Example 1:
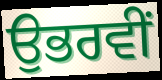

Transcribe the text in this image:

ਉਭਰਵੀਂ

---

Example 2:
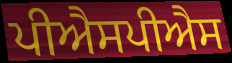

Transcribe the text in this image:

ਪੀਐਸਪੀਐਸ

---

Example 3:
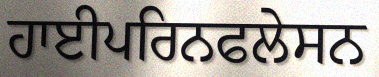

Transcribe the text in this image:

ਹਾਈਪਰਿਨਫਲੇਸਨ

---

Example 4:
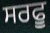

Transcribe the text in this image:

ਸਰਫੂ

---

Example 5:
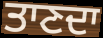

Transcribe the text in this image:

ਤਾਣਦਾ